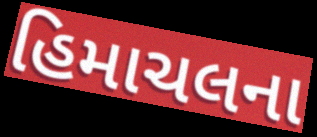
હિમાચલના